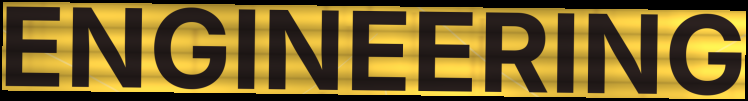
ENGINEERING